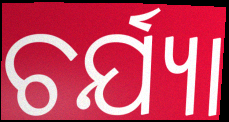
ଚର୍ଯ୍ଯା